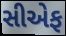
સીએફ